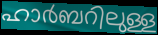
ഹാർബറിലുള്ള